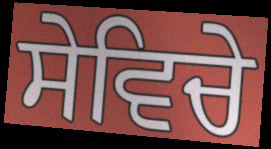
ਸੇਵਿਚੇ